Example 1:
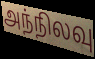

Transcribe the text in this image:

அந்நிலவு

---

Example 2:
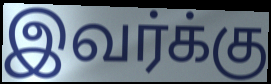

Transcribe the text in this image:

இவர்க்கு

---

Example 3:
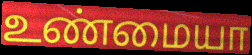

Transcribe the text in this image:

உண்மையா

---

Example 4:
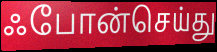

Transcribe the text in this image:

ஃபோன்செய்து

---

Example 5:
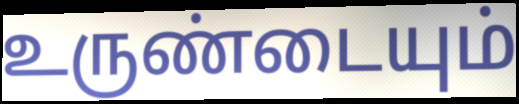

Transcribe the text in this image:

உருண்டையும்